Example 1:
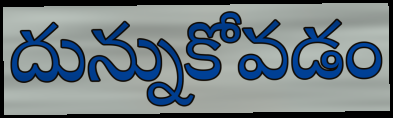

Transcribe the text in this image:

దున్నుకోవడం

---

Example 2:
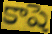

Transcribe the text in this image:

కాషె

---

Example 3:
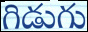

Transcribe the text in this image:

గిడుగు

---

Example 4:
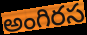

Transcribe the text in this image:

అంగిరస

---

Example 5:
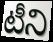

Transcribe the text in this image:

టీని